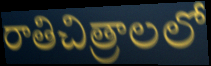
రాతిచిత్రాలలో